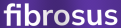
fibrosus